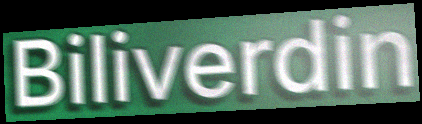
Biliverdin